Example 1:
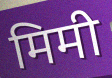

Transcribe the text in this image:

मिमी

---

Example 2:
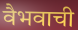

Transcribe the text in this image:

वैभवाची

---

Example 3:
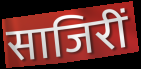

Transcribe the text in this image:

साजिरीं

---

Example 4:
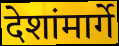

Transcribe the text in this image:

देशांमार्गे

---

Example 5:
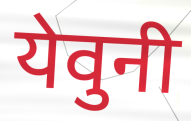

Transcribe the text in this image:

येवुनी